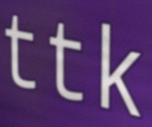
ttk